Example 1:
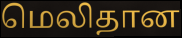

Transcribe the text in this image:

மெலிதான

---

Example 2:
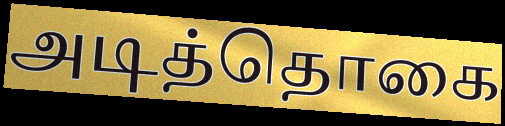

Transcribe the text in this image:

அடித்தொகை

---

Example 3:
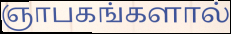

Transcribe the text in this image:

ஞாபகங்களால்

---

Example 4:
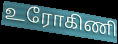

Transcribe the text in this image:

உரோகிணி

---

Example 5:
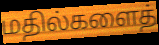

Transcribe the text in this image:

மதில்களைத்